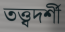
তত্ত্বদর্শী